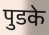
पुडके